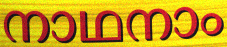
നാഥനാം